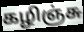
கழிஞ்சு